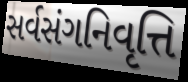
સર્વસંગનિવૃત્તિ